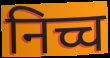
निच्च